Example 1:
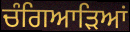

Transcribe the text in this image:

ਚੰਗਿਆੜਿਆਂ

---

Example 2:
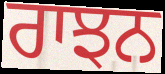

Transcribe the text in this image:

ਰਾਝਨ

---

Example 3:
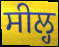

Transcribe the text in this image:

ਸੀਲ੍ਹ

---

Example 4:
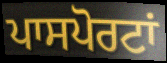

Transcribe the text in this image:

ਪਾਸਪੋਰਟਾਂ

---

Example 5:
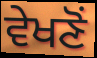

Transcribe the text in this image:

ਵੇਖਣੋਂ